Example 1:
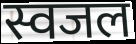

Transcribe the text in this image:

स्वजल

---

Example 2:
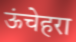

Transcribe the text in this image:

ऊंचेहरा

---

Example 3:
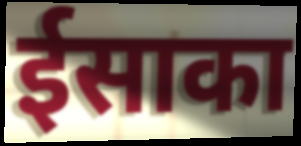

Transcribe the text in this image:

ईसाका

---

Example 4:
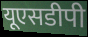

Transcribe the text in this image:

यूएसडीपी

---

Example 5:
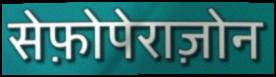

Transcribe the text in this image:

सेफ़ोपेराज़ोन